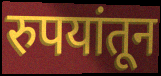
रुपयांतून